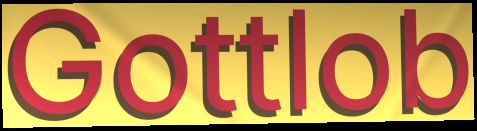
Gottlob